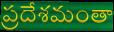
ప్రదేశమంతా